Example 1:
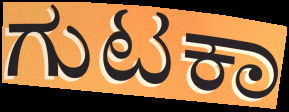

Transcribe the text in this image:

ಗುಟಕಾ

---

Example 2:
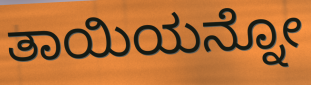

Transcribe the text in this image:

ತಾಯಿಯನ್ನೋ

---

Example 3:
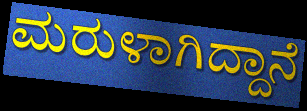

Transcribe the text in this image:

ಮರುಳಾಗಿದ್ದಾನೆ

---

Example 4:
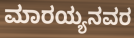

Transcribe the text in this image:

ಮಾರಯ್ಯನವರ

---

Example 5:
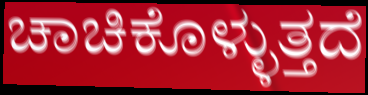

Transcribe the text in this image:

ಚಾಚಿಕೊಳ್ಳುತ್ತದೆ